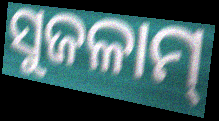
ସୁଜଳାମ୍